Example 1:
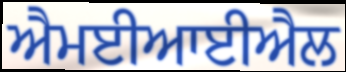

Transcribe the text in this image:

ਐਮਈਆਈਐਲ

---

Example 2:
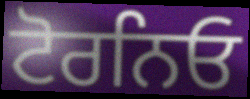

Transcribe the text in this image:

ਟੋਰਨਿਓ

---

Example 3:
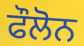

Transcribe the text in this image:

ਫੌਲੋਨ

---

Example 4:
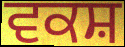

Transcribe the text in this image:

ਵਕਸ਼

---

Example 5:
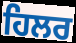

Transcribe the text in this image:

ਹਿਲਰ